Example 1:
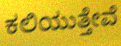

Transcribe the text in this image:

ಕಲಿಯುತ್ತೇವೆ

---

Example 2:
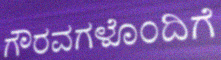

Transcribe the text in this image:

ಗೌರವಗಳೊಂದಿಗೆ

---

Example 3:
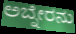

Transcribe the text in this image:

ಅಬ್ನೇರನು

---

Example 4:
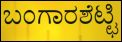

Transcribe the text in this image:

ಬಂಗಾರಶೆಟ್ಟಿ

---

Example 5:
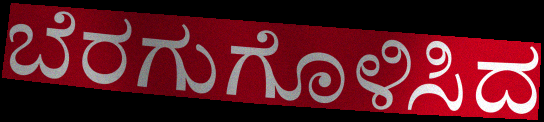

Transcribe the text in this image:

ಬೆರಗುಗೊಳಿಸಿದ